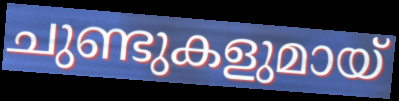
ചുണ്ടുകളുമായ്